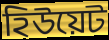
হিউয়েট